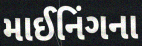
માઈનિંગના